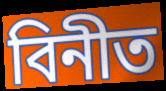
বিনীত